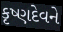
કૃષ્ણદેવને